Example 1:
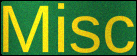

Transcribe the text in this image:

Misc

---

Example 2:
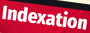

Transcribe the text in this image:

Indexation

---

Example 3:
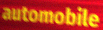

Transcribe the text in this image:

automobile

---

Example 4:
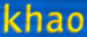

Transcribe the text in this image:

khao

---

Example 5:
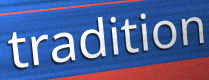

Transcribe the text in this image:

tradition